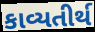
કાવ્યતીર્થ